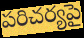
పరిచర్యపై